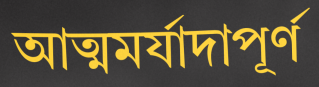
আত্মমর্যাদাপূর্ণ